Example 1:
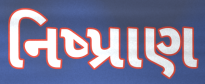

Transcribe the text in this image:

નિષ્પ્રાણ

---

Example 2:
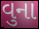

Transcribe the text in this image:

વુના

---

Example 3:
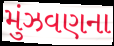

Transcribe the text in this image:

મુંઝવણના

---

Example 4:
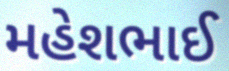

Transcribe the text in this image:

મહેશભાઈ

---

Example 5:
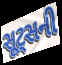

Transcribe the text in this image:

સૂટ્સની